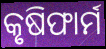
କୃଷିଫାର୍ମ